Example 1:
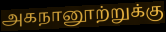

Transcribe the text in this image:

அகநானூற்றுக்கு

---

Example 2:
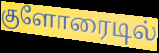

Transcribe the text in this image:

குளோரைடில்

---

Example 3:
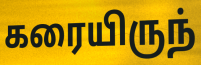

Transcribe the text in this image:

கரையிருந்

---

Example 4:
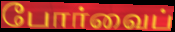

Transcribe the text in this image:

போர்வைப்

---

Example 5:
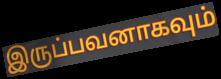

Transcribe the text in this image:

இருப்பவனாகவும்